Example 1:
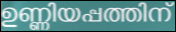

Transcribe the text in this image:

ഉണ്ണിയപ്പത്തിന്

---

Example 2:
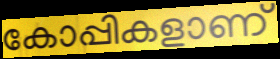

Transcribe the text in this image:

കോപ്പികളാണ്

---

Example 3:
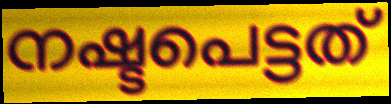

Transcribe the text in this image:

നഷ്ടപെട്ടത്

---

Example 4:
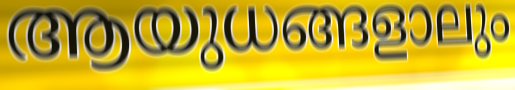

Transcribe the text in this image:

ആയുധങ്ങളാലും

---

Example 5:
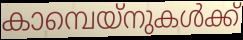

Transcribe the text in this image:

കാമ്പെയ്നുകൾക്ക്